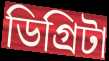
ডিগ্রিটা